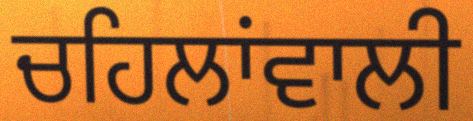
ਚਹਿਲਾਂਵਾਲੀ